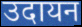
उदायन